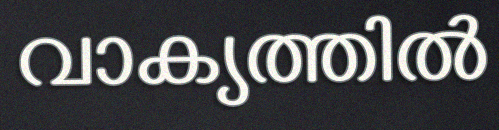
വാക്യത്തിൽ